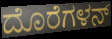
ದೊರೆಗಳನ್